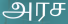
அரச